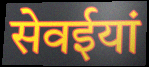
सेवईयां